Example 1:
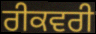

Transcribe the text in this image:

ਰੀਕਵਰੀ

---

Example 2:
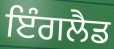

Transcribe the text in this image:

ਇੰਗਲੈਡ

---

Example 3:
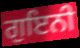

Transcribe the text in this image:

ਗੁਇਨੀ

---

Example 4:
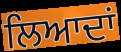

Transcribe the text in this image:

ਲਿਆਦਾਂ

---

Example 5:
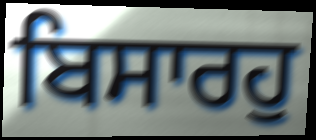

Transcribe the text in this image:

ਬਿਸਾਰਹੁ